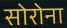
सोरोना